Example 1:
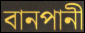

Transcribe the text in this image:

বানপানী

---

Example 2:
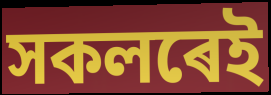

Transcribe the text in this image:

সকলৰেই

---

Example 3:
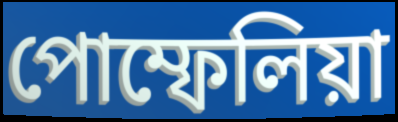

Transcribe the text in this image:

পোম্ফেলিয়া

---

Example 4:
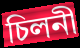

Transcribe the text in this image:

চিলনী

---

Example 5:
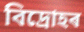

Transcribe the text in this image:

বিদ্ৰোহৰ